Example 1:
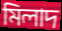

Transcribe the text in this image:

মিলাদ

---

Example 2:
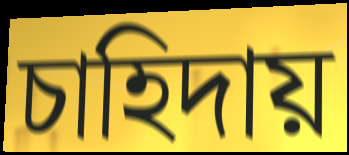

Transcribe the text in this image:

চাহিদায়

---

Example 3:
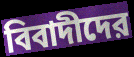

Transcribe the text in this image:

বিবাদীদের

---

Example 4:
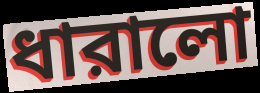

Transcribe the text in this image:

ধারালো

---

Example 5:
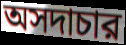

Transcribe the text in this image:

অসদাচার